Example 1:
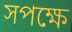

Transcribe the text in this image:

সপক্ষে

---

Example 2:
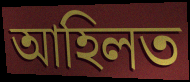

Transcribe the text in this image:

আহিলত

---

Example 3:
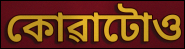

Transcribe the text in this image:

কোৱাটোও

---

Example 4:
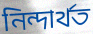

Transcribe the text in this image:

নিন্দাৰ্থত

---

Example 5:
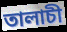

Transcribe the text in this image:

তালাচী